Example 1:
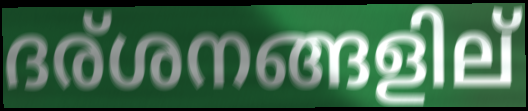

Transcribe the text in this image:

ദര്ശനങ്ങളില്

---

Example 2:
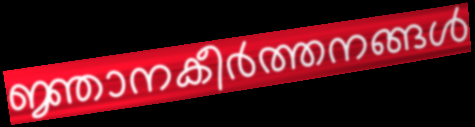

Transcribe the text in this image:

ജ്ഞാനകീർത്തനങ്ങൾ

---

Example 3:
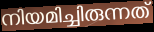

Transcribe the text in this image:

നിയമിച്ചിരുന്നത്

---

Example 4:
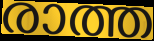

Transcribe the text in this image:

രാത്ത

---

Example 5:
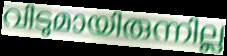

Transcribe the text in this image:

വിടുമായിരുന്നില്ല